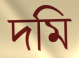
দমি